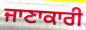
ਜਾਣਾਕਾਰੀ